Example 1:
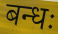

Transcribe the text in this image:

बन्धः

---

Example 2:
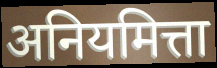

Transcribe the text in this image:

अनियमित्ता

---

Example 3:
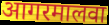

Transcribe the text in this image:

आगरमालवा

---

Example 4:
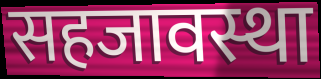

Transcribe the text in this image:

सहजावस्था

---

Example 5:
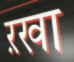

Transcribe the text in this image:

ऱखा